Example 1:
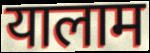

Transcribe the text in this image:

यालाम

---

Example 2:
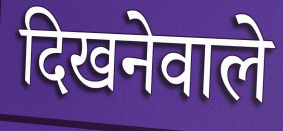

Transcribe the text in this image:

दिखनेवाले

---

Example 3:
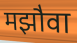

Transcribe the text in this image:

मझौवा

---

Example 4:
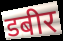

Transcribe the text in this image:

डबीर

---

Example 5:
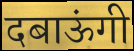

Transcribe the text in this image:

दबाऊंगी